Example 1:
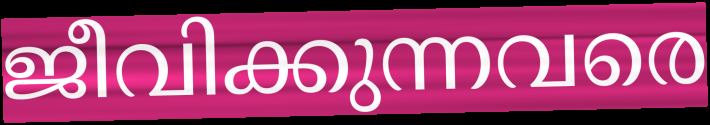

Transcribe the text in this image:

ജീവിക്കുന്നവരെ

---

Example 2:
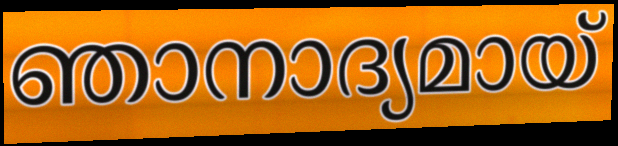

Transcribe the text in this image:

ഞാനാദ്യമായ്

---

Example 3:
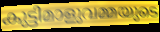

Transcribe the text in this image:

കുട്ടിമാളുവമ്മയുടെ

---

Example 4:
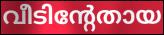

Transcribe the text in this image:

വീടിന്റേതായ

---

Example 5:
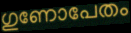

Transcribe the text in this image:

ഗുണോപേതം